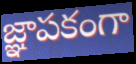
జ్ఞాపకంగా